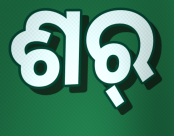
ଶର୍